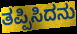
ತಪ್ಪಿಸಿದನು